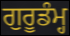
ਗੁਰੂਡੰਮ੍ਹ